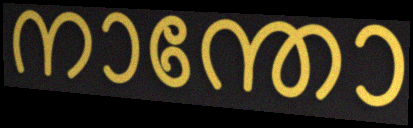
നാന്തോ